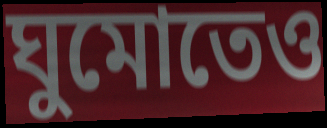
ঘুমোতেও